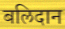
बलिदान